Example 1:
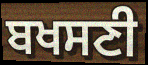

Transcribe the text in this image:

ਬਖਸਣੀ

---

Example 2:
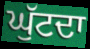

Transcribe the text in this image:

ਘੁੱਟਦਾ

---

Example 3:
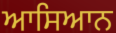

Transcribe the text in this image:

ਆਸਿਆਨ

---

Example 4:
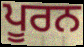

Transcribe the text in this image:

ਪੂਰਨ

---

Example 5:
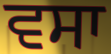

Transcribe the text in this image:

ਵਸਾ